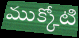
ముక్కోటి